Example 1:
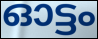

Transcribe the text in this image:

ഓട്ടം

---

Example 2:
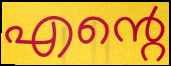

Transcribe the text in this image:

എന്റെ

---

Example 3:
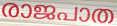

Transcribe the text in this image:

രാജപാത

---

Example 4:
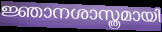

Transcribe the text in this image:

ജ്ഞാനശാസ്ത്രമായി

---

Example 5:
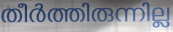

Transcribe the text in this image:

തീർത്തിരുന്നില്ല